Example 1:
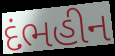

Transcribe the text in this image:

દંભહીન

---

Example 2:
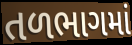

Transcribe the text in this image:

તળભાગમાં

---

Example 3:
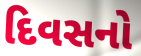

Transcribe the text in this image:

દિવસનો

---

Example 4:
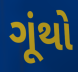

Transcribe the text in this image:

ગૂંથો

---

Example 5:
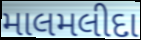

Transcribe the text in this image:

માલમલીદા